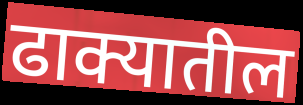
ढाक्यातील